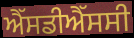
ਐੱਸਡੀਐੱਸਸੀ